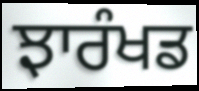
ਝਾਰੰਖਡ